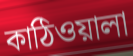
কাঠিওয়ালা